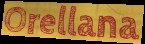
Orellana